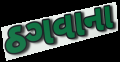
ઠગવાના